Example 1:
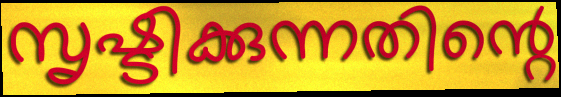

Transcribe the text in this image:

സൃഷ്ടിക്കുന്നതിന്റെ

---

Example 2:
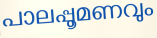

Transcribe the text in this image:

പാലപ്പൂമണവും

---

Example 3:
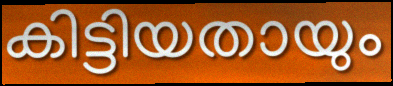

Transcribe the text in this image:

കിട്ടിയതായും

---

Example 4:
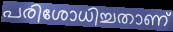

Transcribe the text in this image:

പരിശോധിച്ചതാണ്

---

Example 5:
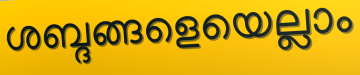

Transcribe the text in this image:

ശബ്ദങ്ങളെയെല്ലാം